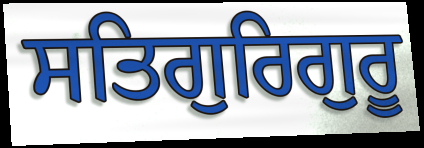
ਸਤਿਗੁਰਿਗੁਰੂ